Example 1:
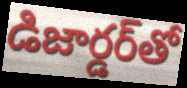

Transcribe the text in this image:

డిజార్డర్‌తో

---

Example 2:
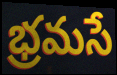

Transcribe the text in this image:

భ్రమసే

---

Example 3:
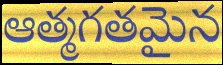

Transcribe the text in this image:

ఆత్మగతమైన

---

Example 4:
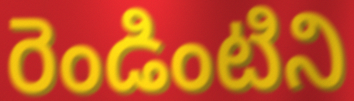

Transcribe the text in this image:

రెండింటిని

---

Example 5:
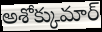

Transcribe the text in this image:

అశోక్కుమార్